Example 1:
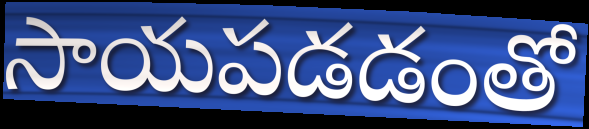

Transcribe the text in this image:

సాయపడడంతో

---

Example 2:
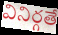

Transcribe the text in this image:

వినిర్గతే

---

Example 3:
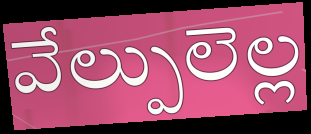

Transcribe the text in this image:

వేల్పులెల్ల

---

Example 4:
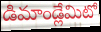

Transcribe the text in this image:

డిమాండ్లేమిటో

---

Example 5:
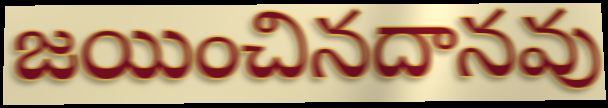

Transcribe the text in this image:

జయించినదానవు